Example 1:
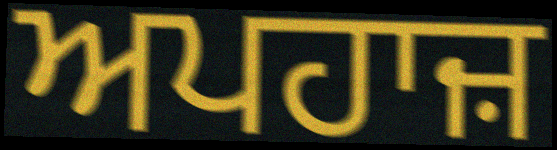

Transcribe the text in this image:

ਅਪਹਾਜ਼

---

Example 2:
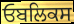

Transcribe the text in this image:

ਓਬਲਿਕਸ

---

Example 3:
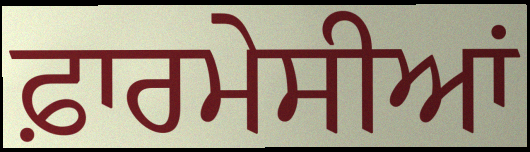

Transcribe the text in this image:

ਫ਼ਾਰਮੇਸੀਆਂ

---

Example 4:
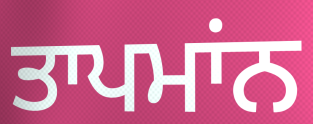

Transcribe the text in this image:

ਤਾਪਮਾਂਨ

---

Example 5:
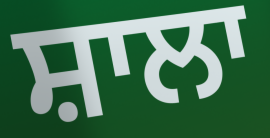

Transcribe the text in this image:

ਸ਼ਾਲਾ